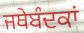
ਜਥੇਬੰਦਕਾਂ